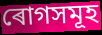
ৰোগসমূহ